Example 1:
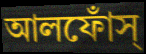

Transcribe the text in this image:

আলফোঁস্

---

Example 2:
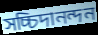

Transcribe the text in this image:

সচ্চিদানন্দন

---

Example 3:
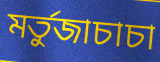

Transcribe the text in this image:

মর্তুজাচাচা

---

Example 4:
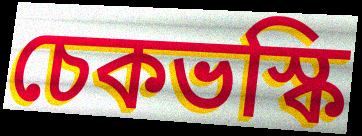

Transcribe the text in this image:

চেকভস্কি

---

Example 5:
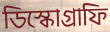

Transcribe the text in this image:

ডিস্কোগ্রাফি